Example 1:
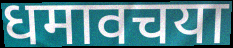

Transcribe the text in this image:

धमावचया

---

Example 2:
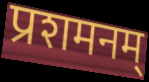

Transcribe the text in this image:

प्रशमनम्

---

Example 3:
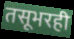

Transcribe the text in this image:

तसूभरही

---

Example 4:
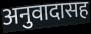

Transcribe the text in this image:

अनुवादासह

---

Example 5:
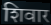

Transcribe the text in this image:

शिवार